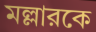
মল্লারকে